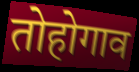
तोहोगाव